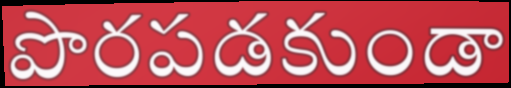
పొరపడకుండా